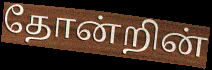
தோன்றின்